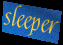
sleeper